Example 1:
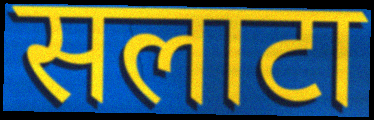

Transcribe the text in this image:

सलाटा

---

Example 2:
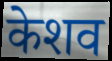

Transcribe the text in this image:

केशव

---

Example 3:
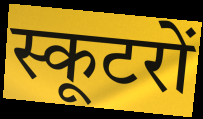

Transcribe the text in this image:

स्कूटरों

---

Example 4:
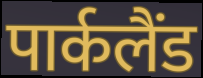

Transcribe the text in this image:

पार्कलैंड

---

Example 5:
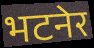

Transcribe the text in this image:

भटनेर